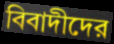
বিবাদীদের